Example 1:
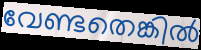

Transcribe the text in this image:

വേണ്ടതെങ്കിൽ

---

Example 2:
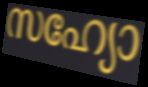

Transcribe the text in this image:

സഹ്യോ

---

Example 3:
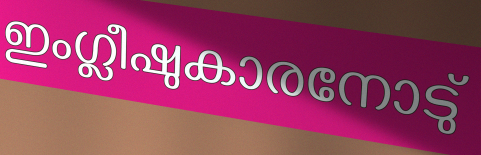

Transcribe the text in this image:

ഇംഗ്ലീഷുകാരനോടു്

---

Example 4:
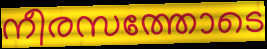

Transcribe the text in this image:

നീരസത്തോടെ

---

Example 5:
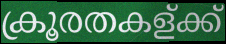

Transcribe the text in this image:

ക്രൂരതകള്ക്ക്